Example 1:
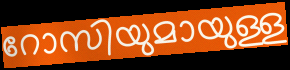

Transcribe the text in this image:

റോസിയുമായുള്ള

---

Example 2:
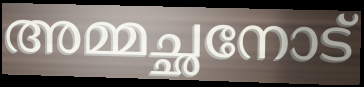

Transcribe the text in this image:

അമ്മച്ഛനോട്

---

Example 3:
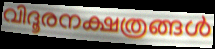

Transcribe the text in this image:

വിദൂരനക്ഷത്രങ്ങൾ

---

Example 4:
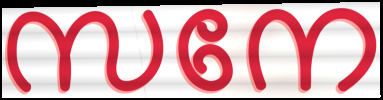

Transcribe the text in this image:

സനേ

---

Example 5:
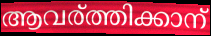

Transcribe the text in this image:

ആവര്ത്തിക്കാന്